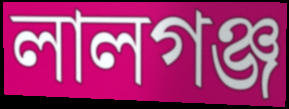
লালগঞ্জ